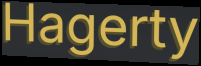
Hagerty